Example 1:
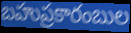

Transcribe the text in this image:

బహుప్రకారంబుల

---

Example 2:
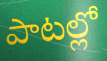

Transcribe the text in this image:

పాటల్లో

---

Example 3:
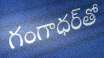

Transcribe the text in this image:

గంగాధర్‌తో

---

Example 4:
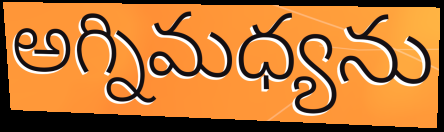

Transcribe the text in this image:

అగ్నిమధ్యను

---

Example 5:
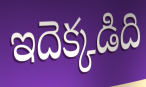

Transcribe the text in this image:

ఇదెక్కడిది